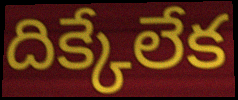
దిక్కేలేక